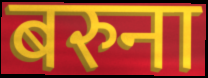
बरुना